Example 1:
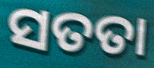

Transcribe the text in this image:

ସତତା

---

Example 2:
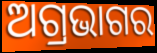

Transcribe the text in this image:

ଅଗ୍ରଭାଗର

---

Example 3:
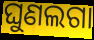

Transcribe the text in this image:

ଘୁଣଲଗା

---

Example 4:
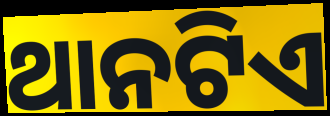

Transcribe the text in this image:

ଥାନଟିଏ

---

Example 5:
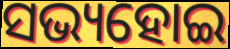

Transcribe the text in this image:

ସଭ୍ୟହୋଇ